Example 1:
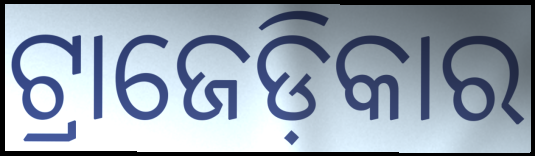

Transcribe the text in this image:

ଟ୍ରାଜେଡ଼ିକାର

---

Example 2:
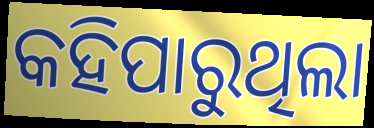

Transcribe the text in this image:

କହିପାରୁଥିଲା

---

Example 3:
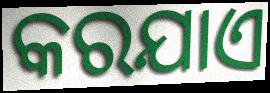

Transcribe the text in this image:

କରଯାଏ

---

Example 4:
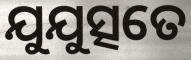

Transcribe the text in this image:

ଯୁଯୁତ୍ସତେ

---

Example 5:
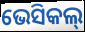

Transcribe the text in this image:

ଭେସିକଲ୍